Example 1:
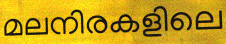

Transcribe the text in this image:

മലനിരകളിലെ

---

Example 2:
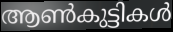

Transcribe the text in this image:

ആൺകുട്ടികൾ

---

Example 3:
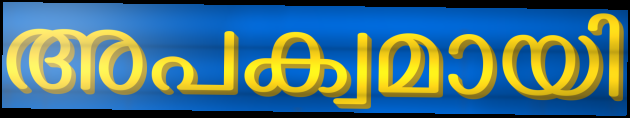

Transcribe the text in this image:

അപക്വമായി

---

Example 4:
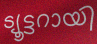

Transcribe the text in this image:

ട്യൂട്ടറായി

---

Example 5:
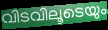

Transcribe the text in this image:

വിടവിലൂടെയും